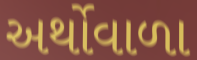
અર્થોવાળા